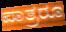
ಪಾತ್ರರೂ